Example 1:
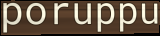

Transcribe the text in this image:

poruppu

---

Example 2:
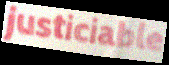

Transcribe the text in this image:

justiciable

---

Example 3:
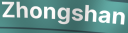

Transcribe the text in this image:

Zhongshan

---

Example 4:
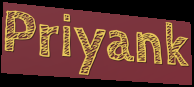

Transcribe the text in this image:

Priyank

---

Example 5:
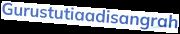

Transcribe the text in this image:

Gurustutiaadisangrah